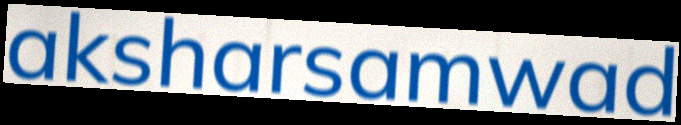
aksharsamwad